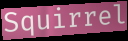
Squirrel